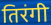
तिरंगी